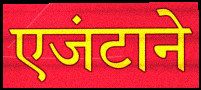
एजंटाने